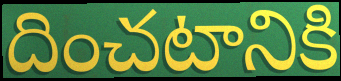
దించటానికి